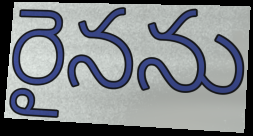
రైనను